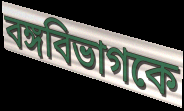
বঙ্গবিভাগকে